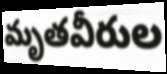
మృతవీరుల